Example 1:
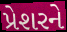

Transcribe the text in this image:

પ્રેશરને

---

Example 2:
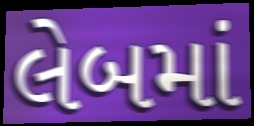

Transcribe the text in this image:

લેબમાં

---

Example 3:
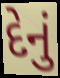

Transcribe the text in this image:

દેનું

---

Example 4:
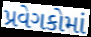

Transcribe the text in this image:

પ્રવેગકોમાં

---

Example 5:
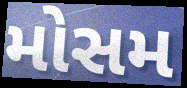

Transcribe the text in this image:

મોસમ